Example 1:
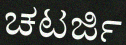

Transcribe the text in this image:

ಚಟರ್ಜಿ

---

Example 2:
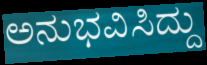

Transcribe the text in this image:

ಅನುಭವಿಸಿದ್ದು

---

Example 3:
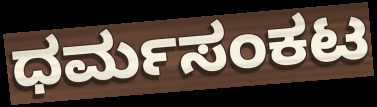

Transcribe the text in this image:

ಧರ್ಮಸಂಕಟ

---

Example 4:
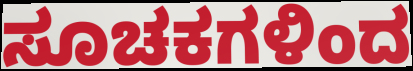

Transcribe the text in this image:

ಸೂಚಕಗಳಿಂದ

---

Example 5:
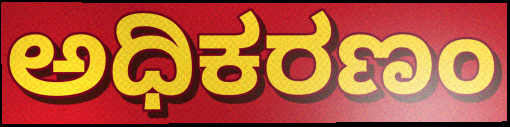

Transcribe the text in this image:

ಅಧಿಕರಣಂ